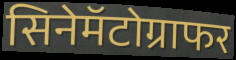
सिनेमॅटोग्राफर